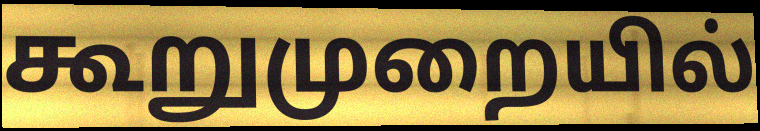
கூறுமுறையில்